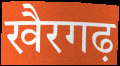
खैरगढ़